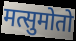
मत्सुमोतो